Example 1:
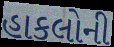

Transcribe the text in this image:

હાકલોની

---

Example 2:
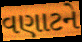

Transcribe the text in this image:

વણાટને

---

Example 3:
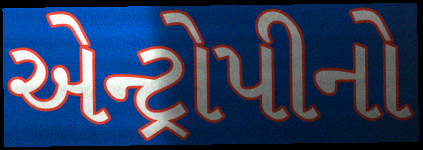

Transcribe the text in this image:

એન્ટ્રોપીનો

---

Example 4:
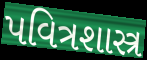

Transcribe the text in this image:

પવિત્રશાસ્ત્ર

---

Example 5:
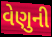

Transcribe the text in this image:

વેણુની